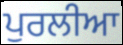
ਪੁਰਲੀਆ